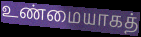
உண்மையாகத்